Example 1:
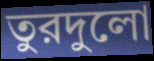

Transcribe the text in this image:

তুরদুলো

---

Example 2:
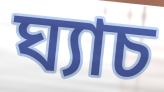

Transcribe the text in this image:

ঘ্যাচ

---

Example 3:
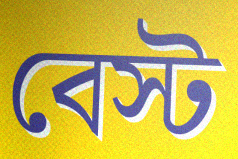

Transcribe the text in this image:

বেস্ট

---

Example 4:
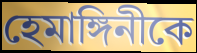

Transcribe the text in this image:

হেমাঙ্গিনীকে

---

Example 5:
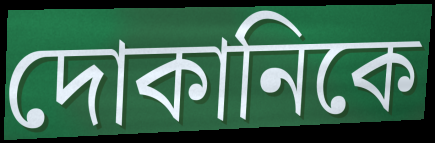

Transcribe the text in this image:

দোকানিকে